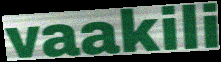
vaakili